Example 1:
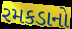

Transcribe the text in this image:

રમકડાનો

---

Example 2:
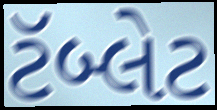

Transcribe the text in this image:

ટૅબ્લેટ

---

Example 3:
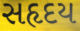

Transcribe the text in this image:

સહૃદય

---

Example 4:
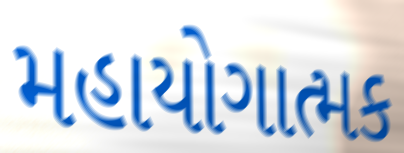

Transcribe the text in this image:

મહાયોગાત્મક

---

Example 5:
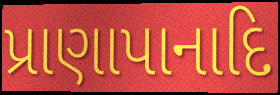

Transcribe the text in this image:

પ્રાણાપાનાદિ